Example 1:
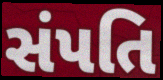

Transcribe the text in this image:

સંપતિ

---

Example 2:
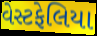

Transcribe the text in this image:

વેસ્ટફેલિયા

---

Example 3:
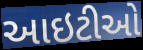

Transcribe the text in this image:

આઇટીઓ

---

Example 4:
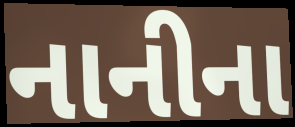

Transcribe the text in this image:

નાનીના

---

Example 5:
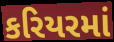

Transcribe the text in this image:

કરિયરમાં